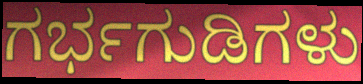
ಗರ್ಭಗುಡಿಗಳು